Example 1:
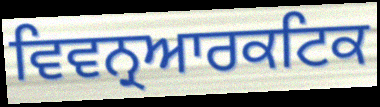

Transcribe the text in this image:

ਵਿਵਨ੍ਰਆਰਕਟਿਕ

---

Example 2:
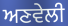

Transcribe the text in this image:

ਅਣਵੇਲੀ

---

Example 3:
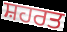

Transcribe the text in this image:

ਸ਼ਹਰਤ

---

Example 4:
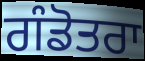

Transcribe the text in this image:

ਗੰਡੋਤਰਾ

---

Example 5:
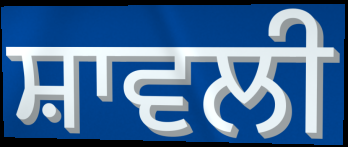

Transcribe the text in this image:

ਸ਼ਾਵਲੀ